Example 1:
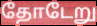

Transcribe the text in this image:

தோடேறு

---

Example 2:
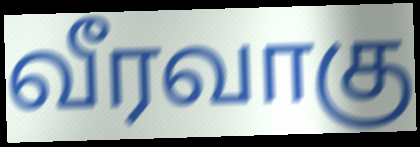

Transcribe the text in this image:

வீரவாகு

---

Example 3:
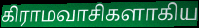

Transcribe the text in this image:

கிராமவாசிகளாகிய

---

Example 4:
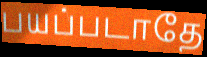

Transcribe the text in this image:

பயப்படாதே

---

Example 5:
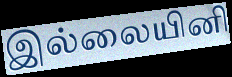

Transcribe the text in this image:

இல்லையினி